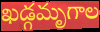
ఖడ్గమృగాల